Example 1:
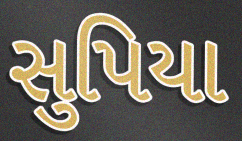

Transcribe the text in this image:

સુપિયા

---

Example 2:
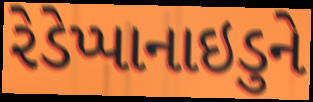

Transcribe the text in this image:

રેડેપ્પાનાઇડુને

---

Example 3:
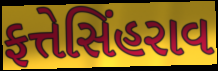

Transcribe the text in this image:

ફત્તેસિંહરાવ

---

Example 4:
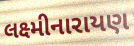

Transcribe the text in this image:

લક્ષ્મીનારાયણ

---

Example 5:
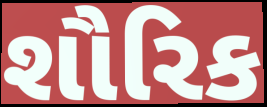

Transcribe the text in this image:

શૌરિક